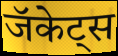
जॅकेट्स